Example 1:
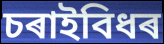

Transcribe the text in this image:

চৰাইবিধৰ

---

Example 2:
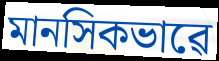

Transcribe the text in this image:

মানসিকভাৱে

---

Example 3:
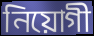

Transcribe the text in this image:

নিয়োগী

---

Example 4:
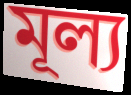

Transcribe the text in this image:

মূল্য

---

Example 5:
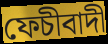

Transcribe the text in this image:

ফেচীবাদী